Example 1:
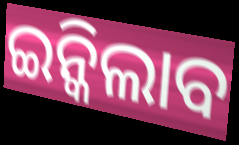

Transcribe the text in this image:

ଇନ୍କିଲାବ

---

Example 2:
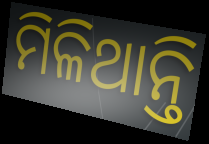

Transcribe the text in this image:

ମିଳିଥାନ୍ତି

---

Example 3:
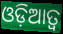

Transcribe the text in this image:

ଓଡ଼ିଆତ୍ୱ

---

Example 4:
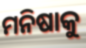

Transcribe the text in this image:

ମନିଷାକୁ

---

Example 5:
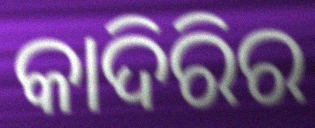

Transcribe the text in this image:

କାଦିରିର